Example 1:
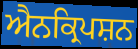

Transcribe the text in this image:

ਐਨਕ੍ਰਿਪਸ਼ਨ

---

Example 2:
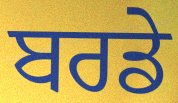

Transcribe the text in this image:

ਬਰਡੇ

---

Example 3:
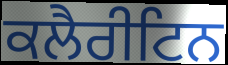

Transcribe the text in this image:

ਕਲੈਰੀਟਿਨ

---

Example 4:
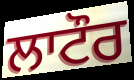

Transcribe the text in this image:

ਲਾਟੌਰ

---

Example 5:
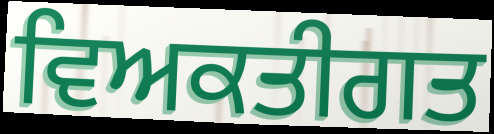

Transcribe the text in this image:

ਵਿਅਕਤੀਗਤ